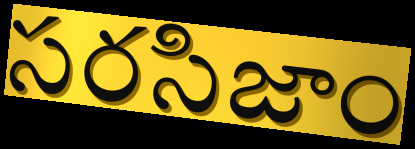
సరసిజాం